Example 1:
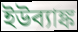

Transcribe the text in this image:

ইউব্যাঙ্ক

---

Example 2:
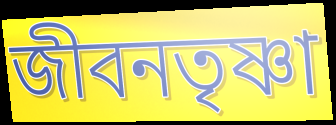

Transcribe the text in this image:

জীবনতৃষ্ণা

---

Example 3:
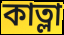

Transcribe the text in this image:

কাত্লা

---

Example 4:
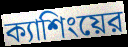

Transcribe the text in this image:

ক্যাশিংয়ের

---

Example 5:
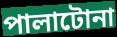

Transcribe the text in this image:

পালাটোনা